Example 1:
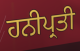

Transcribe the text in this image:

ਹਨੀਪ੍ਰਤੀ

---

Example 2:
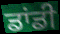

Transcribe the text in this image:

ਡਾਂਡੀ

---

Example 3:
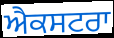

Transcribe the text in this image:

ਐਕਸਟਰਾ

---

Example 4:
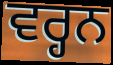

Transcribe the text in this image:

ਵਰ੍ਹਨ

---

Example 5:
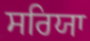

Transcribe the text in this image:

ਸਰਿਯਾ